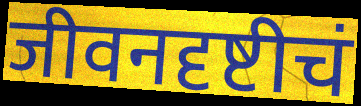
जीवनदृष्टीचं